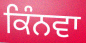
ਕਿੰਨਵਾ